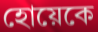
হোয়েকে